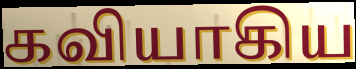
கவியாகிய